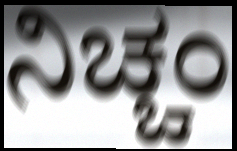
ನಿಚ್ಚಂ